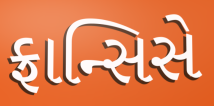
ફ્રાન્સિસે